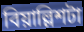
বিয়াল্লিশটা